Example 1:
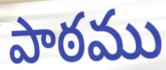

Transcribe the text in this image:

పాఠము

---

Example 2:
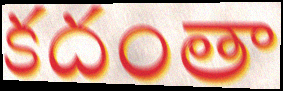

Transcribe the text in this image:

కదంతా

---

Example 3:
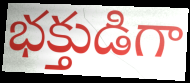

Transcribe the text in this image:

భక్తుడిగా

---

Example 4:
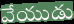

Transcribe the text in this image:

వేయుడు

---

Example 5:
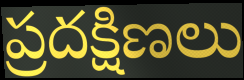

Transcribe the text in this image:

ప్రదక్షిణలు